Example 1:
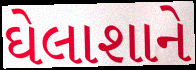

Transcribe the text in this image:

ઘેલાશાને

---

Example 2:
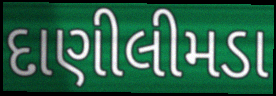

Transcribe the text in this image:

દાણીલીમડા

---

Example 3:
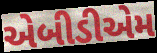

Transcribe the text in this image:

એબીડીએમ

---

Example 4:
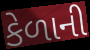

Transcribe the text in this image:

કેળાની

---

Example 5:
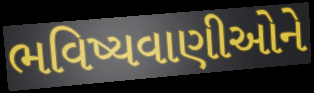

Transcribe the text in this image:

ભવિષ્યવાણીઓને